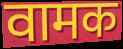
वामक